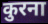
कुरना